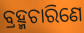
ବ୍ରହ୍ମଚାରିଣେ